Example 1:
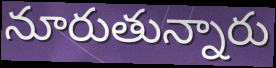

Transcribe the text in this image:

నూరుతున్నారు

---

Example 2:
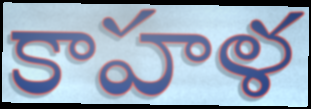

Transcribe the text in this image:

కాహళ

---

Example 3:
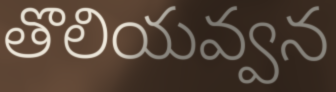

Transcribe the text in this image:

తొలియవ్వన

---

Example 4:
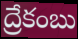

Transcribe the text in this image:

ద్రేకంబు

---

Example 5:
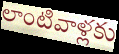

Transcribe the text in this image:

లాంటివాళ్లకు